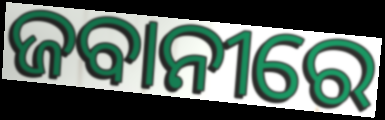
ଜବାନୀରେ